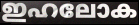
ഇഹലോക